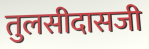
तुलसीदासजी